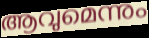
ആവുമെന്നും